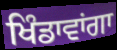
ਖਿੰਡਾਵਾਂਗਾ